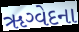
ૠગ્વેદના